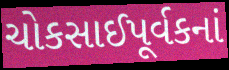
ચોકસાઈપૂર્વકનાં